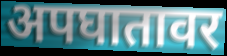
अपघातावर